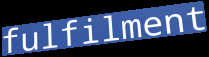
fulfilment